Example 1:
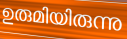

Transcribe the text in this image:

ഉരുമിയിരുന്നു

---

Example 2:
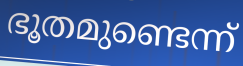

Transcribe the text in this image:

ഭൂതമുണ്ടെന്ന്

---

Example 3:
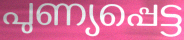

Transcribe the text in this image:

പുണ്യപ്പെട്ട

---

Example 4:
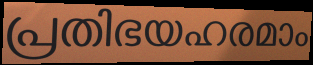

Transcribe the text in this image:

പ്രതിഭയഹരമാം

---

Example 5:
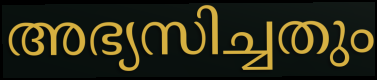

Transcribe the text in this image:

അഭ്യസിച്ചതും